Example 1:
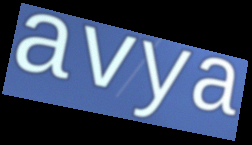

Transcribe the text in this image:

avya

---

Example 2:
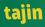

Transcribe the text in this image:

tajin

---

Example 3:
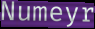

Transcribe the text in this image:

Numeyr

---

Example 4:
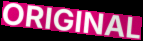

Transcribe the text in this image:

ORIGINAL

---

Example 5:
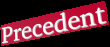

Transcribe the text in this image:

Precedent